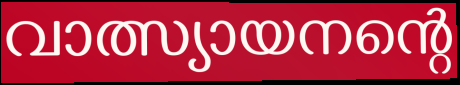
വാത്സ്യായനന്റെ